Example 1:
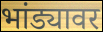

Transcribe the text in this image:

भांड्यावर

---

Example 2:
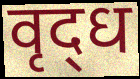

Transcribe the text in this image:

वृद्ध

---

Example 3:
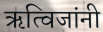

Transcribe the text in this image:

ऋत्विजांनी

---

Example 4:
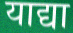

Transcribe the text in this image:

याद्या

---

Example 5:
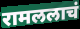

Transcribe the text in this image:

रामललाचं